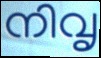
നിവൃ